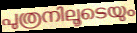
പുത്രനിലൂടെയും